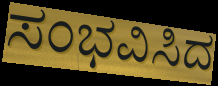
ಸಂಭವಿಸಿದ